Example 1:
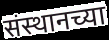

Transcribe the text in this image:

संस्थानच्या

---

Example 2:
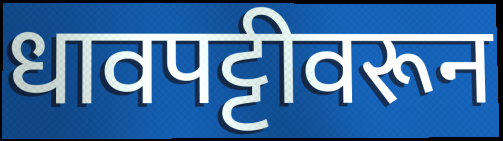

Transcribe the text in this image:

धावपट्टीवरून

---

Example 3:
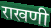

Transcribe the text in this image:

राखणी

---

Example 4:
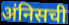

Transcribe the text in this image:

अंनिसची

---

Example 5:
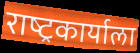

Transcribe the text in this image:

राष्ट्रकार्याला